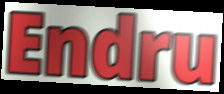
Endru